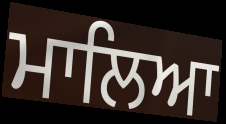
ਮਾਲਿਆ